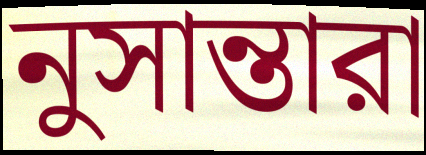
নুসান্তারা